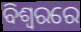
ବିଶ୍ବରରେ